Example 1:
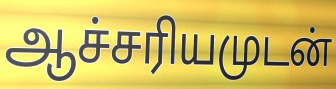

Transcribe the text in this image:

ஆச்சரியமுடன்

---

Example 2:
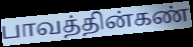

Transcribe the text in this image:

பாவத்தின்கண்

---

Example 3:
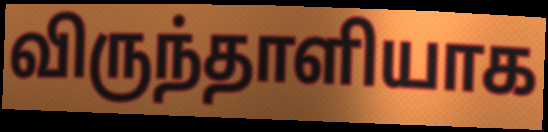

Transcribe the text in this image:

விருந்தாளியாக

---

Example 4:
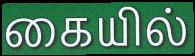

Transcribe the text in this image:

கையில்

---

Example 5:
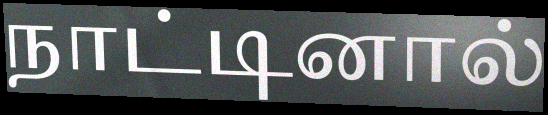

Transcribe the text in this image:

நாட்டினால்